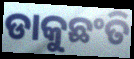
ଡାକୁଛଂତି